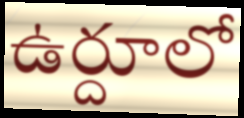
ఉర్దూలో